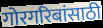
गोरगरिबांसाठी